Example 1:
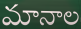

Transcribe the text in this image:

మానాల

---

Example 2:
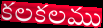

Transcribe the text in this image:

కలకలము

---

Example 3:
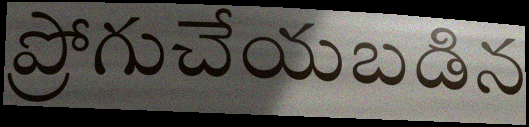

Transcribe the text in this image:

ప్రోగుచేయబడిన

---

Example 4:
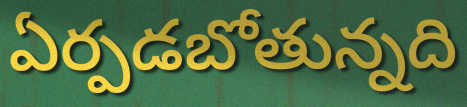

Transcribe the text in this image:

ఏర్పడబోతున్నది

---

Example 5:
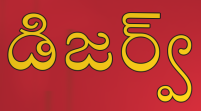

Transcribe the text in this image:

డిజర్వ్